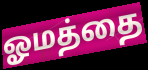
ஓமத்தை